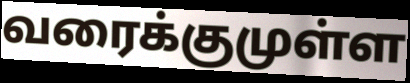
வரைக்குமுள்ள